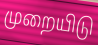
முறையிடு